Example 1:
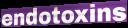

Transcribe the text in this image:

endotoxins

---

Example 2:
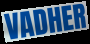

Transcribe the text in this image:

VADHER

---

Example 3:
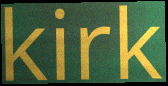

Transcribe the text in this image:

kirk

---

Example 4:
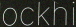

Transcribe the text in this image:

ockhi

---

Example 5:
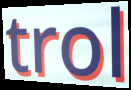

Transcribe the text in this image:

trol